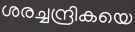
ശരച്ചന്ദ്രികയെ